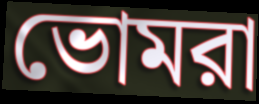
ভোমরা